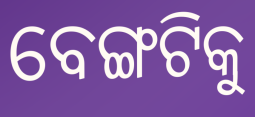
ବେଙ୍ଗଟିକୁ